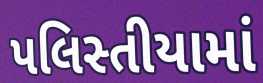
પલિસ્તીયામાં